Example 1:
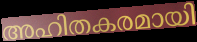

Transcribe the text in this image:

അഹിതകരമായി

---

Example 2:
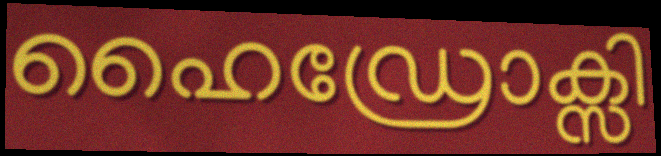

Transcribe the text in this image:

ഹൈഡ്രോക്സി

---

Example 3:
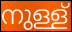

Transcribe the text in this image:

നുള്ള്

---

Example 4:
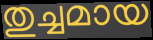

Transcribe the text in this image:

തുച്ചമായ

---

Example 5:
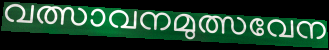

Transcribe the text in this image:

വത്സാവനമുത്സവേന